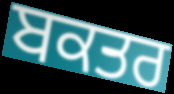
ਬਕਤਰ